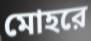
মোহরে